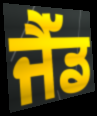
ਜੈੱਡ